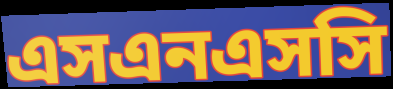
এসএনএসসি